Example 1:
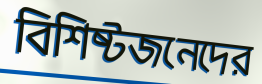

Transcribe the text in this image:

বিশিষ্টজনেদের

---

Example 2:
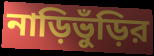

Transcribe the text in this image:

নাড়িভুঁড়ির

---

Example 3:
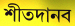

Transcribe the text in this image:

শীতদানব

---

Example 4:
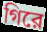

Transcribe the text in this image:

গিরে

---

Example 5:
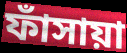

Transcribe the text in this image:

ফাঁসায়া